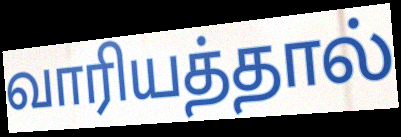
வாரியத்தால்